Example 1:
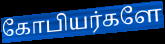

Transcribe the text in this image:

கோபியர்களே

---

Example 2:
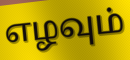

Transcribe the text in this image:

எழவும்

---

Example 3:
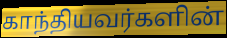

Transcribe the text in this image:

காந்தியவர்களின்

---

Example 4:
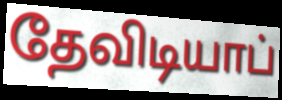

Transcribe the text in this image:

தேவிடியாப்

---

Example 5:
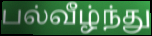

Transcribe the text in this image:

பல்வீழ்ந்து